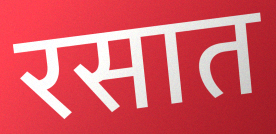
रसात